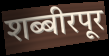
शब्बीरपूर